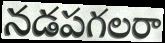
నడపగలరా